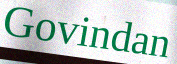
Govindan